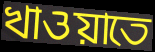
খাওয়াতে